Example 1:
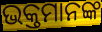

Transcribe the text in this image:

ଭକ୍ତମାନଙ୍କ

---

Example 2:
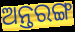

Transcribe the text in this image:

ଅନ୍ତରଙ୍ଗ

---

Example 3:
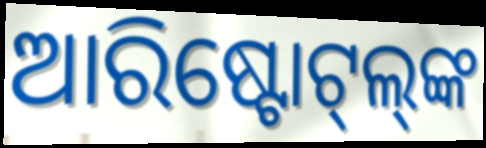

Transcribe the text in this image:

ଆରିଷ୍ଟୋଟ୍‌ଲ୍‌ଙ୍କ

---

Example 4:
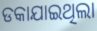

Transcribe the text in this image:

ଡକାଯାଇଥିଲା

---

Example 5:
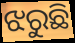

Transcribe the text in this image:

ଝରୁଛି